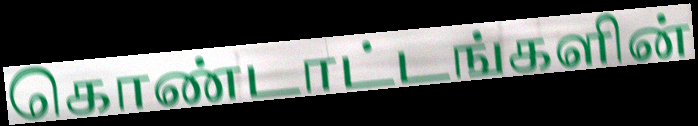
கொண்டாட்டங்களின்